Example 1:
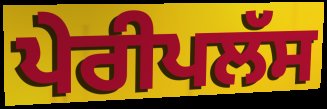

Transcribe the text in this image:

ਪੇਰੀਪਲੱਸ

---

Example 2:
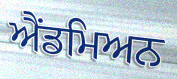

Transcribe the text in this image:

ਐਂਡਮਿਅਨ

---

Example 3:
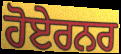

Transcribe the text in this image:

ਹੋਏਰਨਰ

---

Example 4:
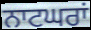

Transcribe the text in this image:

ਨਾਟਘਰਾਂ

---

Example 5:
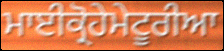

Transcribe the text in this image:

ਮਾਈਕ੍ਰੋਹੇਮੇਟੂਰੀਆ